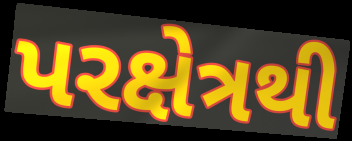
પરક્ષેત્રથી